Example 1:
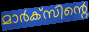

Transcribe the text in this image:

മാർക്‌സിന്റെ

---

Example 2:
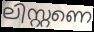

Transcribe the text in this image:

ലിസ്റ്റണെ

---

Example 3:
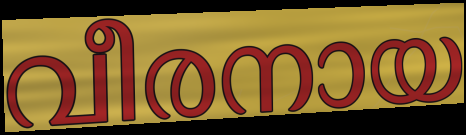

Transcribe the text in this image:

വീരനായ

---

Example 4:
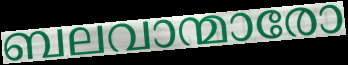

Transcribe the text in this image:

ബലവാന്മാരോ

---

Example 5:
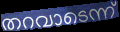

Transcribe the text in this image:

തറവാടെന്ന്